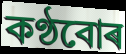
কণ্ঠবোৰ